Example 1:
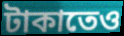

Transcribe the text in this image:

টাকাতেও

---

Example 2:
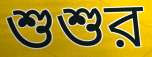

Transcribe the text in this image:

শুশুর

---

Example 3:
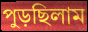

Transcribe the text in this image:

পুড়ছিলাম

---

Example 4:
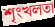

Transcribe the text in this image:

শৃংখলতা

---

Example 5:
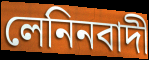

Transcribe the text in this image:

লেনিনবাদী